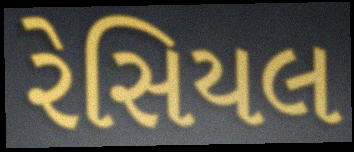
રેસિયલ